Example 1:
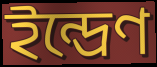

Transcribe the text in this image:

ইন্দ্রেণ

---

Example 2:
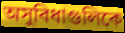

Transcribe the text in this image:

অসুবিধাগুলিকে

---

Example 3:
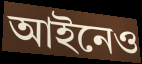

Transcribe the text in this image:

আইনেও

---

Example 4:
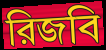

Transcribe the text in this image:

রিজবি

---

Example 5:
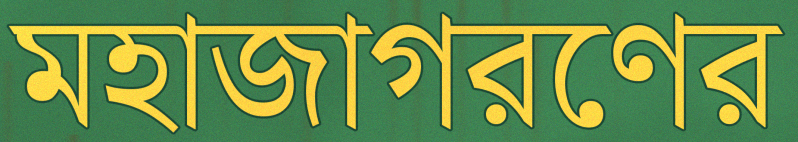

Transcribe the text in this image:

মহাজাগরণের